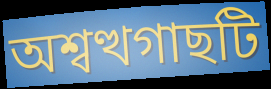
অশ্বত্থগাছটি